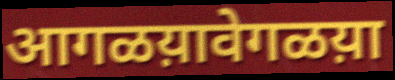
आगळय़ावेगळय़ा